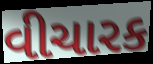
વીચારક